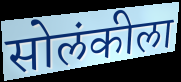
सोलंकीला